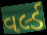
વર્લ્ડ